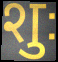
शुः